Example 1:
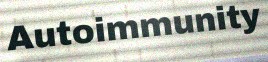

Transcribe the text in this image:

Autoimmunity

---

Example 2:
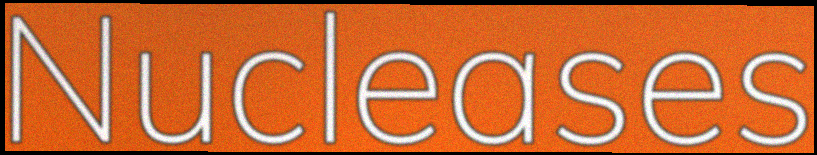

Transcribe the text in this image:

Nucleases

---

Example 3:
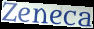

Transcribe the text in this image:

Zeneca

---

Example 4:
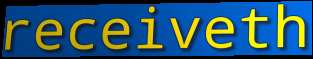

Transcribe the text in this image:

receiveth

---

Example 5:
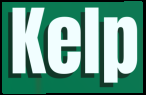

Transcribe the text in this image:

Kelp